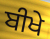
ਬੀਖੇ